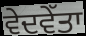
ਵੇਦਵੇੱਤਾ